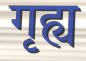
गृह्य